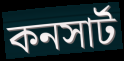
কনসার্ট